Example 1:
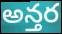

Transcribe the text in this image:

అన్తర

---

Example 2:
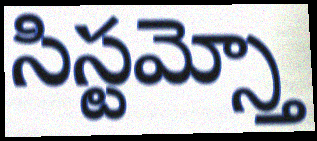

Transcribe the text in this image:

సిస్టమ్స్తో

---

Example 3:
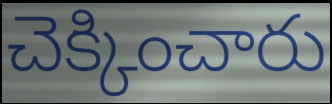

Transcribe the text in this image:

చెక్కించారు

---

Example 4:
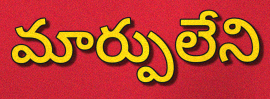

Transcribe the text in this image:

మార్పులేని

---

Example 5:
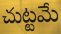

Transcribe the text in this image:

చుట్టమే